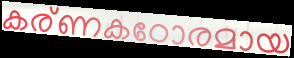
കര്ണകഠോരമായ